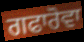
ਗਫਾਰੋਵਾ